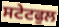
ਸਟੇਟਫੁਲ